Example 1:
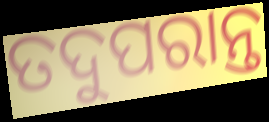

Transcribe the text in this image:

ତଦୁପରାନ୍ତ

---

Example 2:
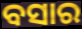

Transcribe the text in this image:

ବସାର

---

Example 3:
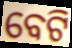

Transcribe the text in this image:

ବେଟି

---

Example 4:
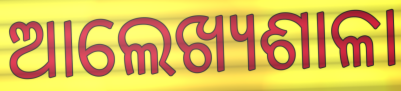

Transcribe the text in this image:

ଆଲେଖ୍ୟଶାଳା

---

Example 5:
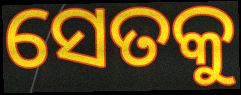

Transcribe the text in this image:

ସେତକୁ